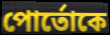
পোর্তোকে